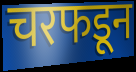
चरफडून